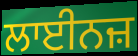
ਲਾਈਨਜ਼